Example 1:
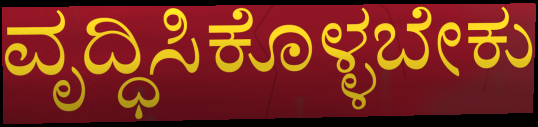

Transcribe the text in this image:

ವೃದ್ಧಿಸಿಕೊಳ್ಳಬೇಕು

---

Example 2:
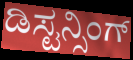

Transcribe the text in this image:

ಡಿಸ್ಟನ್ಸಿಂಗ್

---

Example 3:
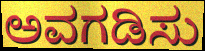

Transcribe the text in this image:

ಅವಗಡಿಸು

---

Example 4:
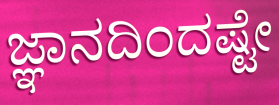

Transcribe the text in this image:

ಜ್ಞಾನದಿಂದಷ್ಟೇ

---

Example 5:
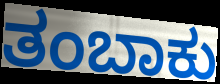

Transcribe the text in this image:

ತಂಬಾಕು